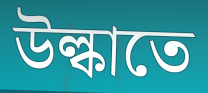
উল্কাতে